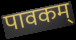
पावकम्